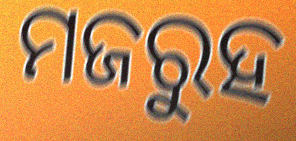
ମଜରୁହ